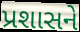
પ્રશાસને